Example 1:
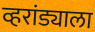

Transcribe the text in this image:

व्हरांड्याला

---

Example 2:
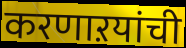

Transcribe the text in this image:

करणाऱयांची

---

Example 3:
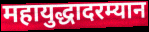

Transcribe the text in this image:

महायुद्धादरम्यान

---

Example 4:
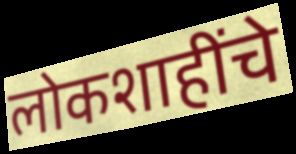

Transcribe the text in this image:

लोकशाहींचे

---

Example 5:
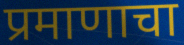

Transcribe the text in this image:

प्रमाणाचा